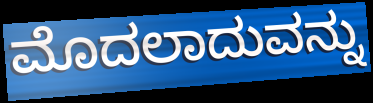
ಮೊದಲಾದುವನ್ನು